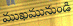
ముఖమునుండి